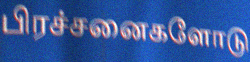
பிரச்சனைகளோடு